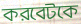
করবেটকে